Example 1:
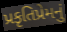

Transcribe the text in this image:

પ્રકૃતિપ્રેમનું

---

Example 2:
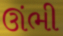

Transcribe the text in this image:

ઊંભી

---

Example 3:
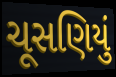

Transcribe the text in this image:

ચૂસણિયું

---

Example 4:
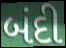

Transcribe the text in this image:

બંદી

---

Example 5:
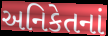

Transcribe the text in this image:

અનિકેતનાં